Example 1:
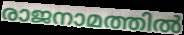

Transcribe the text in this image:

രാജനാമത്തിൽ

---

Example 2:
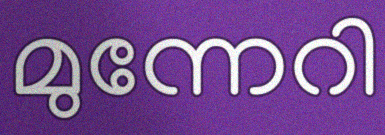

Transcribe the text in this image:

മുന്നേറി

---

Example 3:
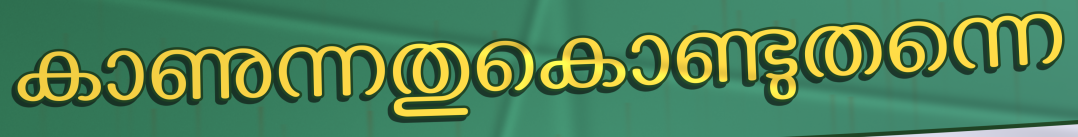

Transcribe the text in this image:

കാണുന്നതുകൊണ്ടുതന്നെ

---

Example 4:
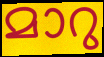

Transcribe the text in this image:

മാറു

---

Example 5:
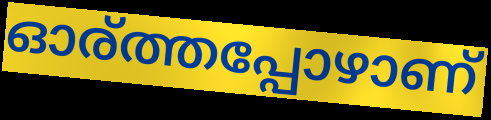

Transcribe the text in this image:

ഓര്ത്തപ്പോഴാണ്